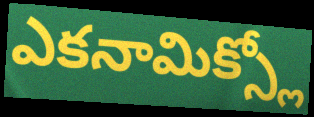
ఎకనామిక్స్లో